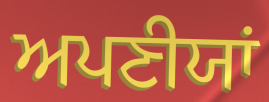
ਅਪਣੀਯਾਂ